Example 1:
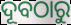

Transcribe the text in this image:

ଦୂବଠାରୁ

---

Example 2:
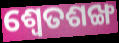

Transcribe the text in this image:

ଶ୍ୱେତଶଙ୍ଖ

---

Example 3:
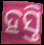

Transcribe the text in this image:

ହସ୍ତି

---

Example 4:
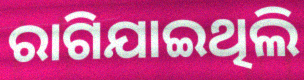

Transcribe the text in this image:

ରାଗିଯାଇଥିଲି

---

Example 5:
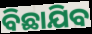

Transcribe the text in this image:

ବିଛାଯିବ